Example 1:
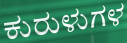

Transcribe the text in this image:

ಕುರುಳುಗಳ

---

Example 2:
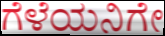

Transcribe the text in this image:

ಗೆಳೆಯನಿಗೇ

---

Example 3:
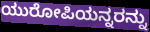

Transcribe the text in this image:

ಯುರೋಪಿಯನ್ನರನ್ನು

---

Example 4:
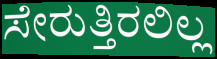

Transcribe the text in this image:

ಸೇರುತ್ತಿರಲಿಲ್ಲ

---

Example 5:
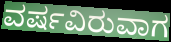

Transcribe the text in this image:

ವರ್ಷವಿರುವಾಗ